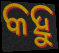
କହୁ